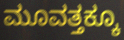
ಮೂವತ್ತಕ್ಕೂ